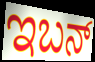
ಇಬನ್